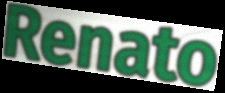
Renato